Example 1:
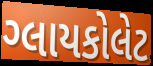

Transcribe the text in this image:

ગ્લાયકોલેટ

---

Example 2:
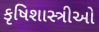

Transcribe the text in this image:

કૃષિશાસ્ત્રીઓ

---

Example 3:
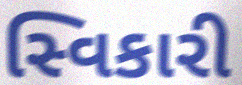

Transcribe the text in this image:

સ્વિકારી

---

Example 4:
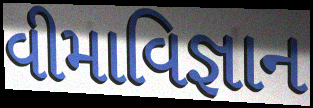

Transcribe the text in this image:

વીમાવિજ્ઞાન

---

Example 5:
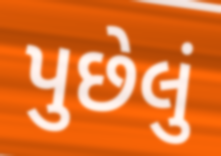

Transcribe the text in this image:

પુછેલું